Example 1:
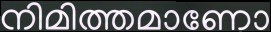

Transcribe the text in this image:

നിമിത്തമാണോ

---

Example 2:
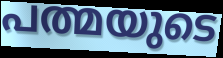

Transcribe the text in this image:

പത്മയുടെ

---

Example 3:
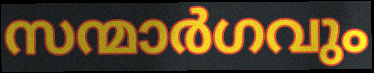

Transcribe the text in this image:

സന്മാർഗവും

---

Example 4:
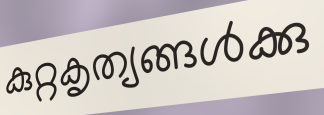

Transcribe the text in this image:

കുറ്റകൃത്യങ്ങൾക്കു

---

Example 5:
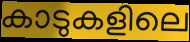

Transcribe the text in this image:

കാടുകളിലെ